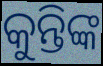
କୁନ୍ତିଙ୍କ